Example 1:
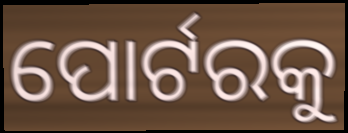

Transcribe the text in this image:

ପୋର୍ଟରକୁ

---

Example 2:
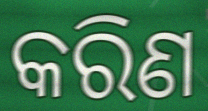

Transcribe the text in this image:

କରିଣ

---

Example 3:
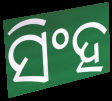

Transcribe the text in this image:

ସିଂହ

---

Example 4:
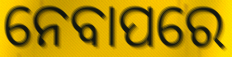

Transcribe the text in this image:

ନେବାପରେ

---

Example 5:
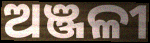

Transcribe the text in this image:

ଅଞ୍ଜଳୀ